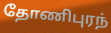
தோணிபுரந்